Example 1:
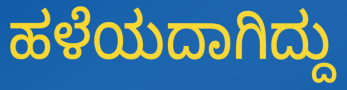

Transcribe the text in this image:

ಹಳೆಯದಾಗಿದ್ದು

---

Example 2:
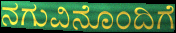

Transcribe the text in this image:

ನಗುವಿನೊಂದಿಗೆ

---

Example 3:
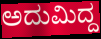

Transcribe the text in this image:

ಅದುಮಿದ್ದ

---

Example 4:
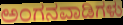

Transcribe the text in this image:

ಅಂಗನವಾಡಿಗಳು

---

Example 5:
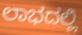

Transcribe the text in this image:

ಲಾಭದಲ್ಲಿ